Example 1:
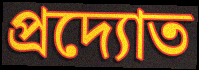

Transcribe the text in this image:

প্রদ্যোত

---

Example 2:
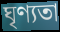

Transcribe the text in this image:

ঘৃণ্যতা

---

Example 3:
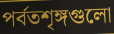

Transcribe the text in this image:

পর্বতশৃঙ্গগুলো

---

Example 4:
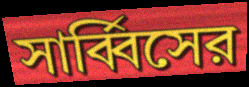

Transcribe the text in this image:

সার্ব্বিসের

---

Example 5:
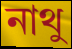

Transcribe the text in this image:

নাথু